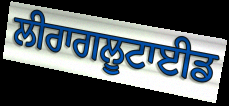
ਲੀਰਾਗਲੂਟਾਈਡ